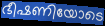
ഭീഷണിയോടെ